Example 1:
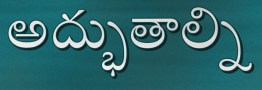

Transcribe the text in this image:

అద్భుతాల్ని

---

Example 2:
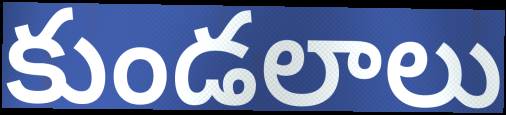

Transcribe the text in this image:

కుండలాలు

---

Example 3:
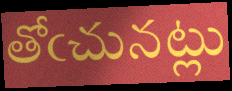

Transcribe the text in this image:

తోఁచునట్లు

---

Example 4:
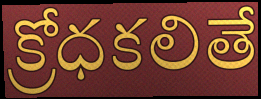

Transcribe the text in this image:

క్రోధకలితే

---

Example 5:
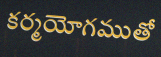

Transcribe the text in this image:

కర్మయోగముతో